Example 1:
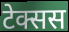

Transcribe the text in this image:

टेक्सस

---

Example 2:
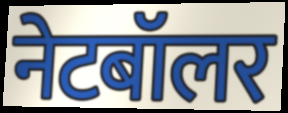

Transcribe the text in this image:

नेटबॉलर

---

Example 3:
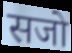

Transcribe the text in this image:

सजो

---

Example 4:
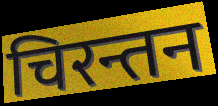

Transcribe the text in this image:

चिरन्तन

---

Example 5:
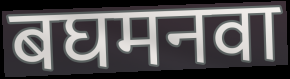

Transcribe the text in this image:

बघमनवा